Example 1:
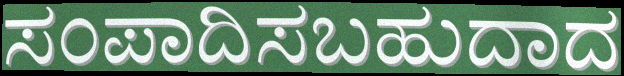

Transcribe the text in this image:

ಸಂಪಾದಿಸಬಹುದಾದ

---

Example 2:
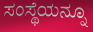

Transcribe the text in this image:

ಸಂಸ್ಥೆಯನ್ನೂ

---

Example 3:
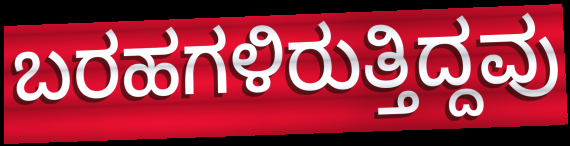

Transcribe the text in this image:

ಬರಹಗಳಿರುತ್ತಿದ್ದವು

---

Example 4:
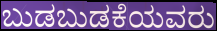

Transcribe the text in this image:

ಬುಡಬುಡಕೆಯವರು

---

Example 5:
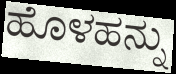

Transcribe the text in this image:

ಹೊಳಹನ್ನು